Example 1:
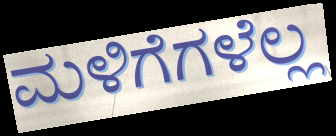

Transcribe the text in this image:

ಮಳಿಗೆಗಳೆಲ್ಲ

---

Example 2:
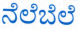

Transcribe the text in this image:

ನೆಲೆಬೆಲೆ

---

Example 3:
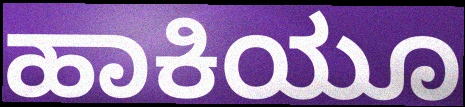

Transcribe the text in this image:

ಹಾಕಿಯೂ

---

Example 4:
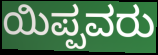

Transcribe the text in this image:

ಯಿಪ್ಪವರು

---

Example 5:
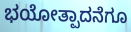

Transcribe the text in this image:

ಭಯೋತ್ಪಾದನೆಗೂ